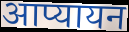
आप्यायन